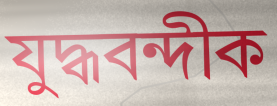
যুদ্ধবন্দীক